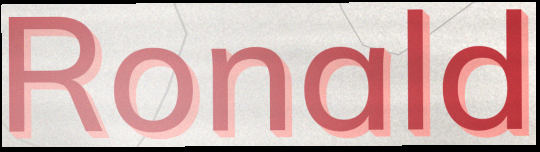
Ronald